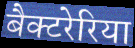
बैक्टरेरिया